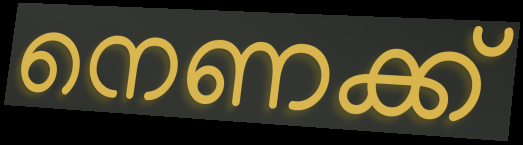
നെണക്ക്